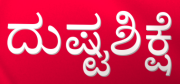
ದುಷ್ಟಶಿಕ್ಷೆ